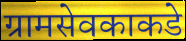
ग्रामसेवकाकडे